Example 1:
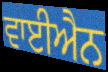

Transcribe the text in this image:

ਵਾਈਐਨ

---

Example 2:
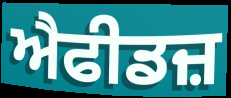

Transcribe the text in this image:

ਐਫੀਡਜ਼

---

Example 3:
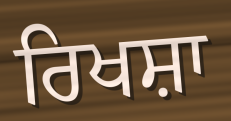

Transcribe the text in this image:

ਰਿਖਸ਼ਾ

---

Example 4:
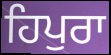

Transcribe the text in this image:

ਹਿਪੁਰਾ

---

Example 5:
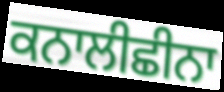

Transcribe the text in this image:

ਕਨਾਲੀਛੀਨਾ